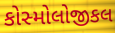
કોસ્મોલોજીકલ